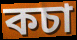
কচা